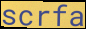
scrfa